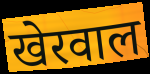
खेरवाल